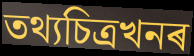
তথ্যচিত্ৰখনৰ